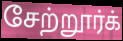
சேற்றூர்க்